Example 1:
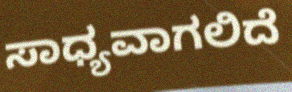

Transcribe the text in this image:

ಸಾಧ್ಯವಾಗಲಿದೆ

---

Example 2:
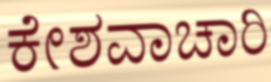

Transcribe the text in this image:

ಕೇಶವಾಚಾರಿ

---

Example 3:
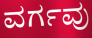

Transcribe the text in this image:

ವರ್ಗವು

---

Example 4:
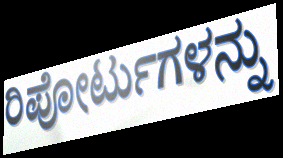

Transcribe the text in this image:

ರಿಪೋರ್ಟುಗಳನ್ನು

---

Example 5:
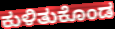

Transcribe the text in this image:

ಕುಳಿತುಕೊಂಡ